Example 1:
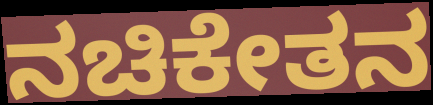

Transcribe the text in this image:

ನಚಿಕೇತನ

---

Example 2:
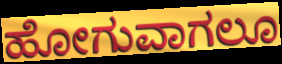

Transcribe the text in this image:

ಹೋಗುವಾಗಲೂ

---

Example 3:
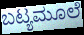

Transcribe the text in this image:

ಬಟ್ಯಮೂಲೆ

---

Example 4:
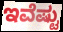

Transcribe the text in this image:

ಇವೆಷ್ಟು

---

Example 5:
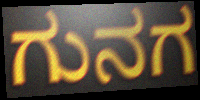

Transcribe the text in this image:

ಗುನಗ